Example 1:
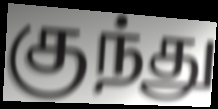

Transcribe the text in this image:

குந்து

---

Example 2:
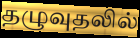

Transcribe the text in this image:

தழுவுதலில்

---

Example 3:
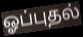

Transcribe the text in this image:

ஓப்புதல்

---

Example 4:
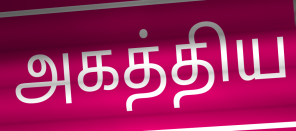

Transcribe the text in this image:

அகத்திய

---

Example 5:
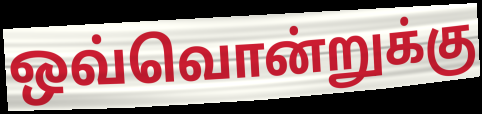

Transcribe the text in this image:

ஒவ்வொன்றுக்கு